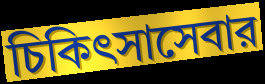
চিকিৎসাসেবার